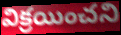
విక్రయించని